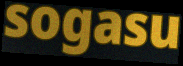
sogasu